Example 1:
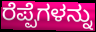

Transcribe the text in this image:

ರೆಪ್ಪೆಗಳನ್ನು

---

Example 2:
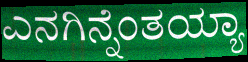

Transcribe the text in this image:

ಎನಗಿನ್ನೆಂತಯ್ಯಾ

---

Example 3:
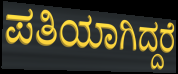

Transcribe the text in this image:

ಪತಿಯಾಗಿದ್ದರೆ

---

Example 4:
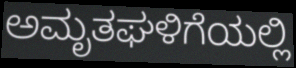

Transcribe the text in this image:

ಅಮೃತಘಳಿಗೆಯಲ್ಲಿ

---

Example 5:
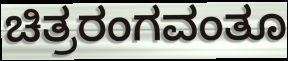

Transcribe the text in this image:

ಚಿತ್ರರಂಗವಂತೂ